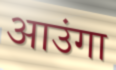
आउंगा